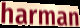
harman